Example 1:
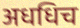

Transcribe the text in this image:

अधधिच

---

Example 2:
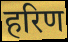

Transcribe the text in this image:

हरिण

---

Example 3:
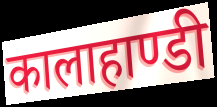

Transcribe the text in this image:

कालाहाण्डी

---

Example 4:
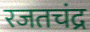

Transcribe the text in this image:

रजतचंद्र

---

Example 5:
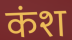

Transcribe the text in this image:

कंश